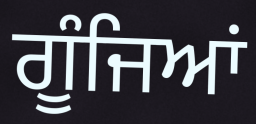
ਗੂੰਜਿਆਂ